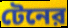
টেনের